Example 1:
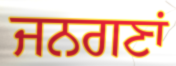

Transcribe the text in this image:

ਜਨਗਣਾਂ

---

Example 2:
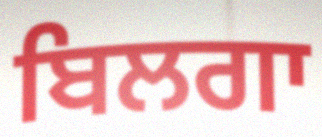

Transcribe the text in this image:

ਬਿਲਗਾ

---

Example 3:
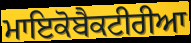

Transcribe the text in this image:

ਮਾਇਕੋਬੈਕਟੀਰੀਆ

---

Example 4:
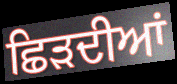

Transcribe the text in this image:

ਛਿੜਦੀਆਂ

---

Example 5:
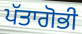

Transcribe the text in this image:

ਪੱਤਾਗੋਭੀ